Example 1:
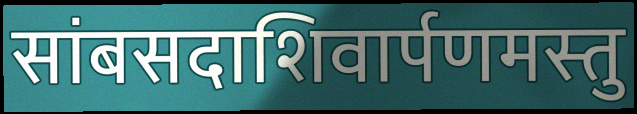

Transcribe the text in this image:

सांबसदाशिवार्पणमस्तु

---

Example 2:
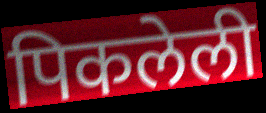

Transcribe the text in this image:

पिकलेली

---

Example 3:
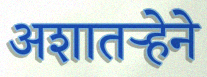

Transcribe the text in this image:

अशातऱ्हेने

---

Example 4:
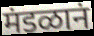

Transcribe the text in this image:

मंडळानं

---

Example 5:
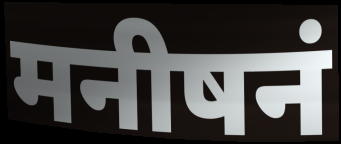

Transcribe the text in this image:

मनीषनं